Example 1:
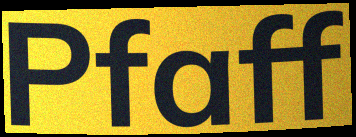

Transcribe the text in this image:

Pfaff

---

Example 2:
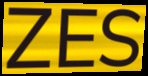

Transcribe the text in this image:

ZES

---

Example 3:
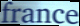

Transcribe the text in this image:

france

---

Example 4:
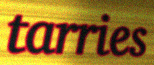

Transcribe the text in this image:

tarries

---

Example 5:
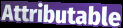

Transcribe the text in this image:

Attributable